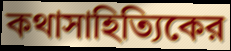
কথাসাহিত্যিকের